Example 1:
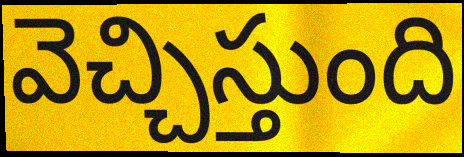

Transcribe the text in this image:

వెచ్చిస్తుంది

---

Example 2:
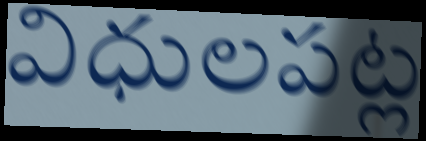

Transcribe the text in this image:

విధులపట్ల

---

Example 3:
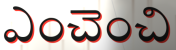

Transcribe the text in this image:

ఎంచెంచి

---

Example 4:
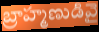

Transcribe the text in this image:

బ్రాహ్మణుడివై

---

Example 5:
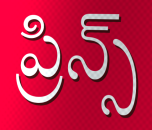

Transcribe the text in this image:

ప్రిన్స్